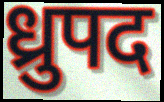
ध्रुपद